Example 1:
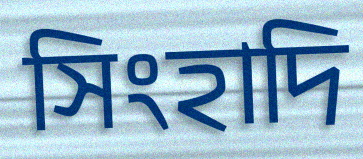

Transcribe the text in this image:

সিংহাদি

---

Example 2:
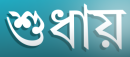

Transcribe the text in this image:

শুধায়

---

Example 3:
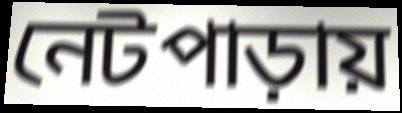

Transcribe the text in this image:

নেটপাড়ায়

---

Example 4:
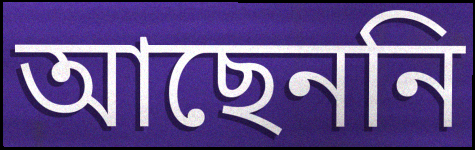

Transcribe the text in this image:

আছেননি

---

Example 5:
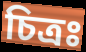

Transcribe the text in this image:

চিত্রঃ